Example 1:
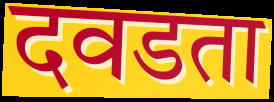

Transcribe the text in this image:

दवडता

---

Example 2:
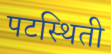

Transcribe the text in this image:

पटस्थिती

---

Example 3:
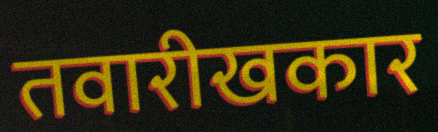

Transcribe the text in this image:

तवारीखकार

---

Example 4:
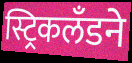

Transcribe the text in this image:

स्ट्रिकलँडने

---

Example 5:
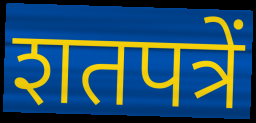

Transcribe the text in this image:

शतपत्रें